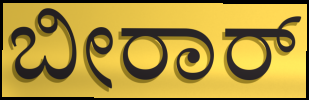
ಬೀರಾರ್